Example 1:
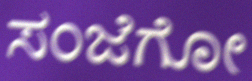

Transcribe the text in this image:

ಸಂಜೆಗೋ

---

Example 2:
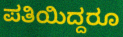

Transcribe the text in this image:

ಪತಿಯಿದ್ದರೂ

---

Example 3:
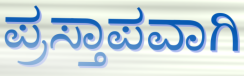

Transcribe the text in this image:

ಪ್ರಸ್ತಾಪವಾಗಿ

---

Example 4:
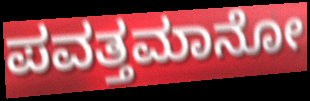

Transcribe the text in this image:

ಪವತ್ತಮಾನೋ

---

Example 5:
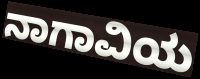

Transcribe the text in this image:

ನಾಗಾವಿಯ